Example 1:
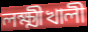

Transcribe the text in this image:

লক্ষ্মীখালী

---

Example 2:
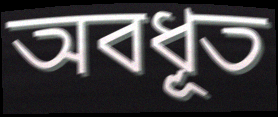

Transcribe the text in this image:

অবধূত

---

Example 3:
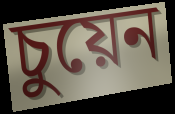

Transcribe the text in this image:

চুয়েন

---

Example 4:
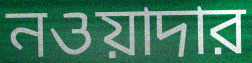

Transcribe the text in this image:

নওয়াদার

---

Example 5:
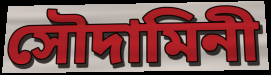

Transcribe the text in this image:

সৌদামিনী